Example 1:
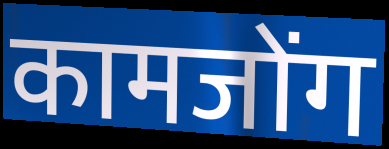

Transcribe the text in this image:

कामजोंग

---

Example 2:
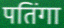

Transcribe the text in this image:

पतिंगा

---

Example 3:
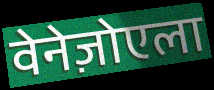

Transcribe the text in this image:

वेनेज़ोएला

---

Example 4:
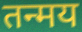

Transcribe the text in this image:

तन्मय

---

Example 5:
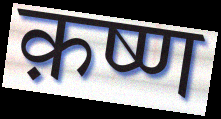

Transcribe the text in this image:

क़ष्ण